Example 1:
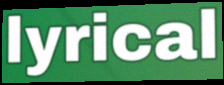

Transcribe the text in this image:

lyrical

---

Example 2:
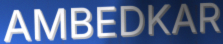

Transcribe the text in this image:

AMBEDKAR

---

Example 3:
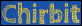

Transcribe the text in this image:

Chirbit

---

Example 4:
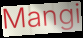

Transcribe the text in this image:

Mangi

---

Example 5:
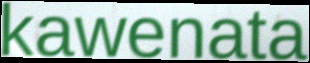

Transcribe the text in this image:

kawenata